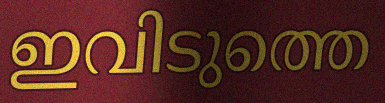
ഇവിടുത്തെ